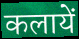
कलायें